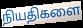
நியதிகளை